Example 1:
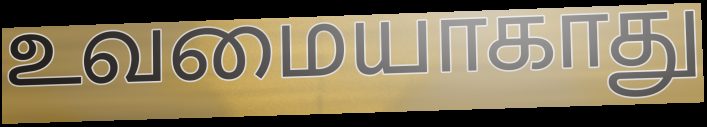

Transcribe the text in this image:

உவமையாகாது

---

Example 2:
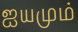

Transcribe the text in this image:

ஐயமும்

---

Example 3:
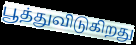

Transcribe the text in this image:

பூத்துவிடுகிறது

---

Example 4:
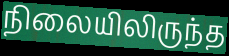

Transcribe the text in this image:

நிலையிலிருந்த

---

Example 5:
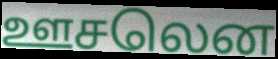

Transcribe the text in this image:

ஊசலென